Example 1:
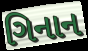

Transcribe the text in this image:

ગિનાન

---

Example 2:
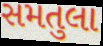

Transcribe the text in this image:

સમતુલા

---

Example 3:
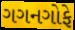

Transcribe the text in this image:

ગગનગોફે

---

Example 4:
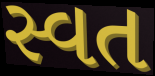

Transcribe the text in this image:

સ્વત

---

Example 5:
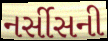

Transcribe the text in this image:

નર્સીસની